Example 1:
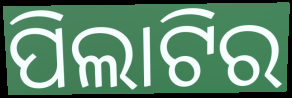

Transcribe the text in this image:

ପିଲାଟିର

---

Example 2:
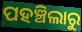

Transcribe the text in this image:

ପହଞ୍ଚିଲାରୁ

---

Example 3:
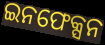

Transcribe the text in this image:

ଇନଫେକ୍ସନ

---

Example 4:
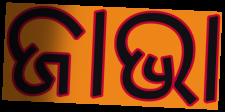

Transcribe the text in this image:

ଜାଭା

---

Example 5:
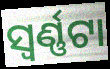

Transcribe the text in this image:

ସ୍ୱର୍ଣ୍ଣଟା